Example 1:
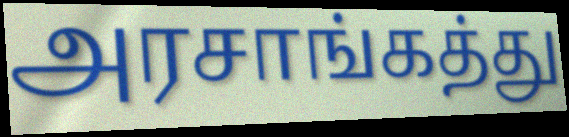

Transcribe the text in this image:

அரசாங்கத்து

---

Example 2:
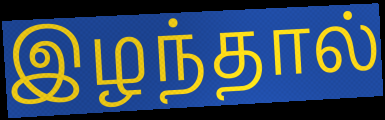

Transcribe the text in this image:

இழந்தால்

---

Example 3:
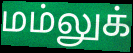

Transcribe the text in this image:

மம்லுக்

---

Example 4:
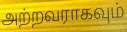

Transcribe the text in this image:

அற்றவராகவும்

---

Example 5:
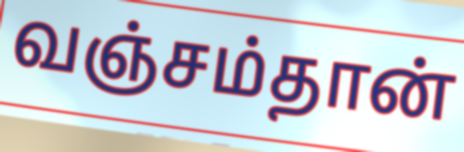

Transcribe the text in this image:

வஞ்சம்தான்